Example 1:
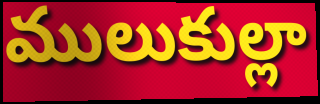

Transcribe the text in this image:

ములుకుల్లా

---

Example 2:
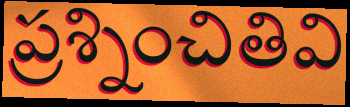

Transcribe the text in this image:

ప్రశ్నించితివి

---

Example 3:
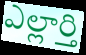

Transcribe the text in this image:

ఎల్లార్తి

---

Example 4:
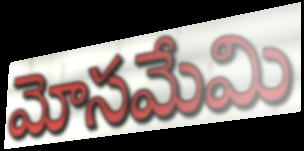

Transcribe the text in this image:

మోసమేమి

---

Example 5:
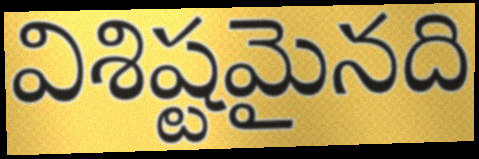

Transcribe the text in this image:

విశిష్టమైనది